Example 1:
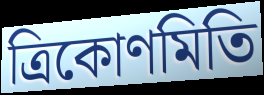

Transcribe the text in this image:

ত্ৰিকোণমিতি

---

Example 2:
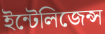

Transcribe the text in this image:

ইন্টেলিজেন্স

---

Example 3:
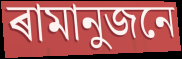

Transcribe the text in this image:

ৰামানুজনে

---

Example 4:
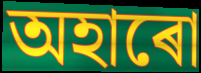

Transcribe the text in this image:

অহাৰো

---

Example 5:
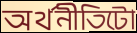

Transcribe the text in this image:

অৰ্থনীতিটো